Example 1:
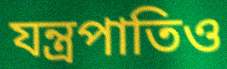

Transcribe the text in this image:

যন্ত্রপাতিও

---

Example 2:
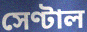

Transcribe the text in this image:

সেণ্টাল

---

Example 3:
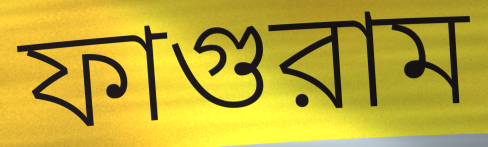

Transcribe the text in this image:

ফাগুরাম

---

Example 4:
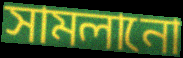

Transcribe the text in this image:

সামলানো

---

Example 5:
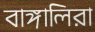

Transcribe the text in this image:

বাঙ্গালিরা